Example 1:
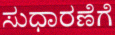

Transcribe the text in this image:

ಸುಧಾರಣೆಗೆ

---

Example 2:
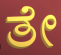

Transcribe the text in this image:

ತೇ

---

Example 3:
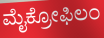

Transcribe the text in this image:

ಮೈಕ್ರೋಫಿಲಂ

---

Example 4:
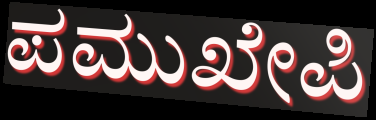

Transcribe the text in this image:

ಪಮುಖೇಪಿ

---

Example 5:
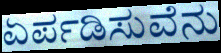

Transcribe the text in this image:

ಏರ್ಪಡಿಸುವೆನು